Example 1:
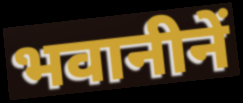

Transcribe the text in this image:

भवानीनें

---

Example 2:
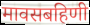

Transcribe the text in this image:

मावसबहिणी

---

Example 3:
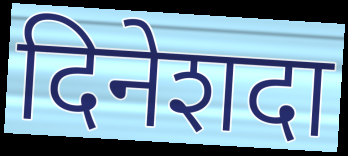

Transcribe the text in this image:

दिनेशदा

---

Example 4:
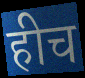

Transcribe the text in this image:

हीच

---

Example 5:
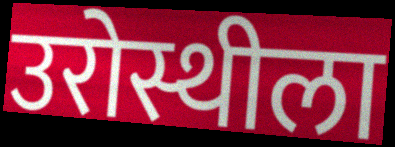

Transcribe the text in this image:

उरोस्थीला